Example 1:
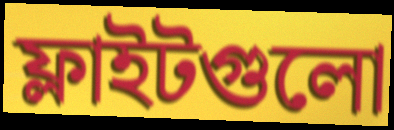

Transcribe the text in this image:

ফ্লাইটগুলো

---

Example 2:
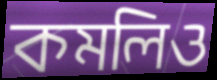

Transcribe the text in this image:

কমলিও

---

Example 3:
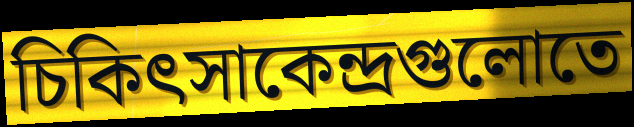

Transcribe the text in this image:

চিকিৎসাকেন্দ্রগুলোতে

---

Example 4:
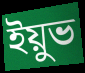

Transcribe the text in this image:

ইয়ুভ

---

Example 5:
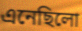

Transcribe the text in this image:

এনেছিলো